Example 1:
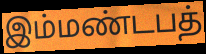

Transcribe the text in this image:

இம்மண்டபத்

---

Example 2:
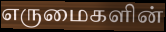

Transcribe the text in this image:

எருமைகளின்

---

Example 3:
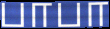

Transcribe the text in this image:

பாபா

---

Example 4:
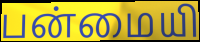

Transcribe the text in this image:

பன்மையி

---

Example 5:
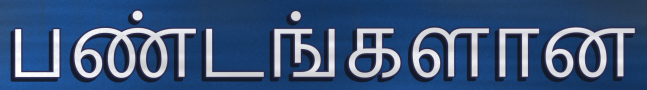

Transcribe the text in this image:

பண்டங்களான